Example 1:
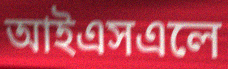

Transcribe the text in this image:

আইএসএলে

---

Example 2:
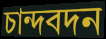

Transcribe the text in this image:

চান্দবদন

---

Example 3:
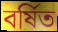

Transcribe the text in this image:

বর্ষিত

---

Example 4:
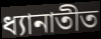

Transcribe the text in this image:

ধ্যানাতীত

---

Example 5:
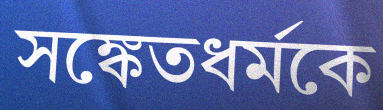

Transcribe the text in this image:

সঙ্কেতধর্মকে